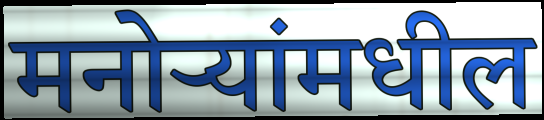
मनोऱ्यांमधील